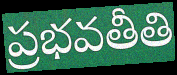
ప్రభవతీతి